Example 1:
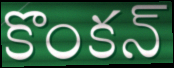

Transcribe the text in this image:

కొంకన్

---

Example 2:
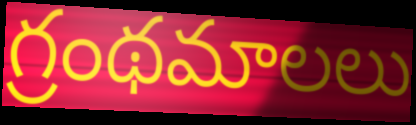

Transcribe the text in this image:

గ్రంథమాలలు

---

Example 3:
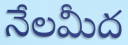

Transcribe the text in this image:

నేలమీద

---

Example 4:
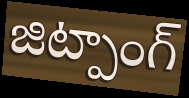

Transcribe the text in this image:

జిట్పాంగ్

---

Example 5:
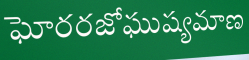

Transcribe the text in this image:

ఘోరరజోఘుష్యమాణ